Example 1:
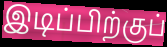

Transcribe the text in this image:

இடிப்பிற்குப்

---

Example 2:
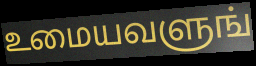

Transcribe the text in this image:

உமையவளுங்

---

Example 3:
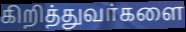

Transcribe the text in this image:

கிறித்துவர்களை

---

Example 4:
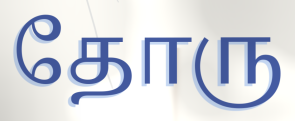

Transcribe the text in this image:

தோரு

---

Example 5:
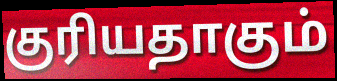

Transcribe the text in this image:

குரியதாகும்